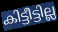
കിട്ടീട്ടില്ല